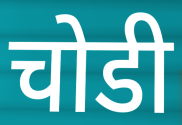
चोडी